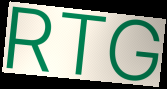
RTG